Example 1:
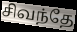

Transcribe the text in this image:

சிவந்தே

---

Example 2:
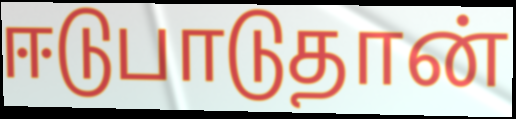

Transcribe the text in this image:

ஈடுபாடுதான்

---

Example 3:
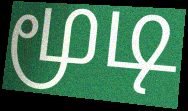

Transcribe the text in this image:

மூடி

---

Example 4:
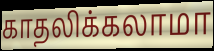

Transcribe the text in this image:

காதலிக்கலாமா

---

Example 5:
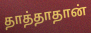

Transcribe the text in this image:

தாத்தாதான்